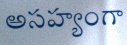
అసహ్యంగా